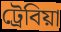
ট্রেবিয়া